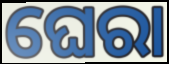
ଘେରା